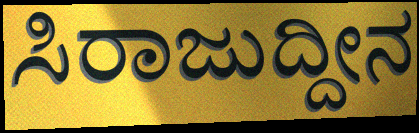
ಸಿರಾಜುದ್ದೀನ